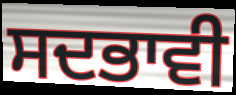
ਸਦਭਾਵੀ